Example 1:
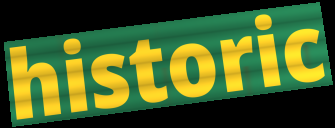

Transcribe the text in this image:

historic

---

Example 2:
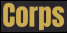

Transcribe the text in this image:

Corps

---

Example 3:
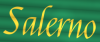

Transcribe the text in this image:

Salerno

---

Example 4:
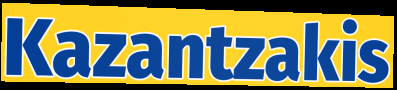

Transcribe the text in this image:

Kazantzakis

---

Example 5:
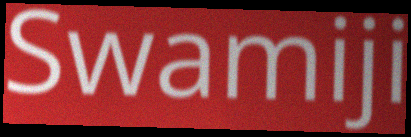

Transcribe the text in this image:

Swamiji